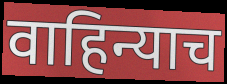
वाहिन्याच